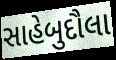
સાહેબુદૌલા